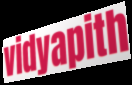
vidyapith